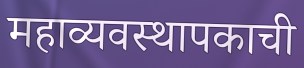
महाव्यवस्थापकाची